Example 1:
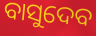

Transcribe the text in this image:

ବାସୁଦେବ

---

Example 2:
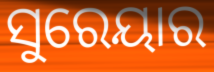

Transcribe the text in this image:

ସୁରେୟାର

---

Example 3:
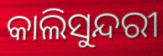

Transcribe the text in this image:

କାଲିସୁନ୍ଦରୀ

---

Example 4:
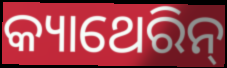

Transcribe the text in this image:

କ୍ୟାଥେରିନ୍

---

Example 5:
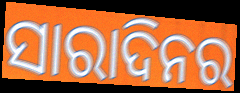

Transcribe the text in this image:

ସାରାଦିନର